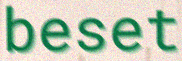
beset